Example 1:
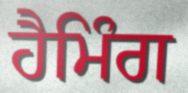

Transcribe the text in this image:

ਹੈਮਿੰਗ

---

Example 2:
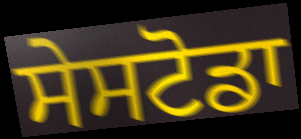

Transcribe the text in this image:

ਸੇਸਟੋਡਾ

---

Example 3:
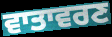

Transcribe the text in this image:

ਵਾਤਾਵਰਣ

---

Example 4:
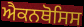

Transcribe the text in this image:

ਐਕਨਥੋਸਿਸ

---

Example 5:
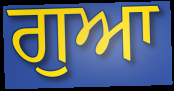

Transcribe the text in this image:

ਗੁਆ